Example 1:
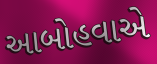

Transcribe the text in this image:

આબોહવાએ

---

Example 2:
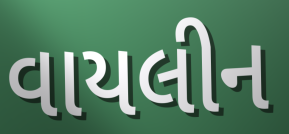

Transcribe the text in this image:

વાયલીન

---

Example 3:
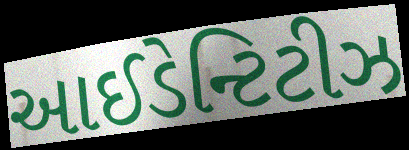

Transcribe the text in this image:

આઈડેન્ટિટીઝ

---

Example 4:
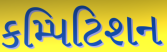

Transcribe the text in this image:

કમ્પિટિશન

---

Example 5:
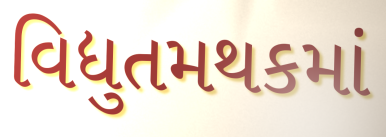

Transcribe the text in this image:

વિદ્યુતમથકમાં